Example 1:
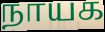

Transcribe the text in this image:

நாயக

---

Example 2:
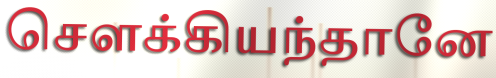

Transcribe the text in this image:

சௌக்கியந்தானே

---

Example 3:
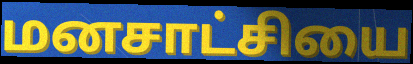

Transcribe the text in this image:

மனசாட்சியை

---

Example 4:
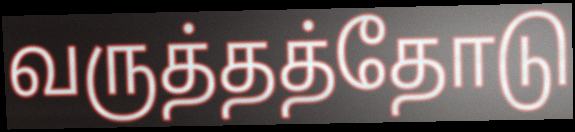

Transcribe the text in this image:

வருத்தத்தோடு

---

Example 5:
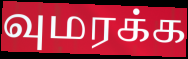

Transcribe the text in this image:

வுமரக்க